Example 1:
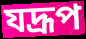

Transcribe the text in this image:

যদ্রূপ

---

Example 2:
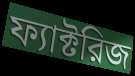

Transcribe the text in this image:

ফ্যাক্টরিজ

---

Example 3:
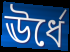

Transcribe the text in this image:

ঊর্ধে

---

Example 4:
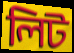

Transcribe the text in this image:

লিট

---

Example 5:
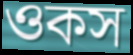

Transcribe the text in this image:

ওকস